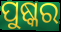
ପୁଷ୍କର